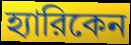
হ্যারিকেন